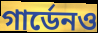
গার্ডেনও